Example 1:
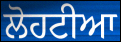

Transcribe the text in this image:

ਲੋਹਟੀਆ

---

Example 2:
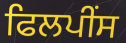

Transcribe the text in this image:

ਫਿਲਪੀਂਸ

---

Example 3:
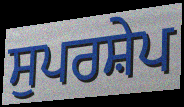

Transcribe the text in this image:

ਸੁਪਰਸ਼ੇਪ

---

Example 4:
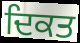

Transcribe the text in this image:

ਦਿਕਤ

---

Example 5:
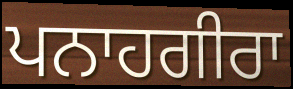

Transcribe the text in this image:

ਪਨਾਹਗੀਰਾ